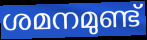
ശമനമുണ്ട്